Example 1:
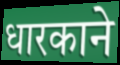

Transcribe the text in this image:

धारकाने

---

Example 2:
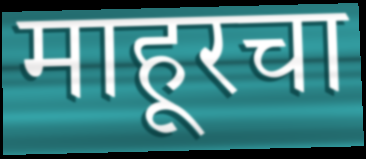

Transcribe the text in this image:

माहूरचा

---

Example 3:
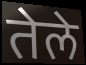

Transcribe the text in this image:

तेले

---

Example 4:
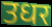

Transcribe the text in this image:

उधर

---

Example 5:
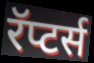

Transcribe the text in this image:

रॅप्टर्स